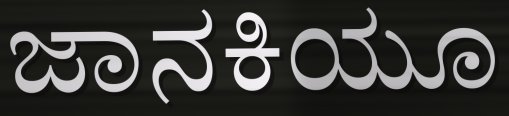
ಜಾನಕಿಯೂ